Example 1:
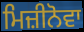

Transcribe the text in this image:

ਮਿਜ਼ੀਨੋਵਾ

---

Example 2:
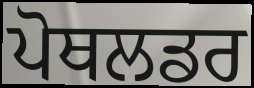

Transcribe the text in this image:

ਪੋਥਲਡਰ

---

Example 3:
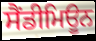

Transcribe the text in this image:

ਸੈਂਡੀਮਿਊਨ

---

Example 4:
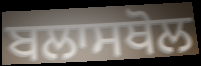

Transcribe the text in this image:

ਬਲਾਸਥੋਲ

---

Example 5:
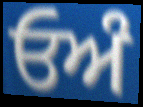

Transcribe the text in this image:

ਓਅੰ